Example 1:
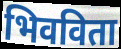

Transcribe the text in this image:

भिवविता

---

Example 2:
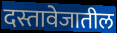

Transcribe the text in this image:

दस्तावेजातील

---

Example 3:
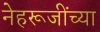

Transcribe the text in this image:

नेहरूजींच्या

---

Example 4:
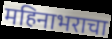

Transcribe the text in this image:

महिनाभराचा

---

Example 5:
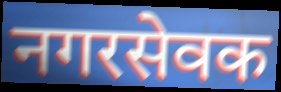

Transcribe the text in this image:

नगरसेवक